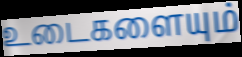
உடைகளையும்